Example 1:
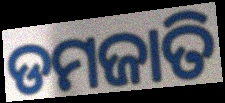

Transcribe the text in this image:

ଡମଜାତି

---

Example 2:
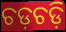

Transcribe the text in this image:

ଚଡ଼ଚଡ଼ି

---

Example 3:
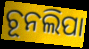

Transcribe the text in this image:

ଚୂନଲିପା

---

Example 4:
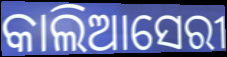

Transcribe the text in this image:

କାଲିଆସେରୀ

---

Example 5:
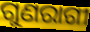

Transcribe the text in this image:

ଗୁଣରାଗୀ